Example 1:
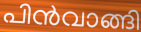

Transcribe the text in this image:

പിൻവാങ്ങി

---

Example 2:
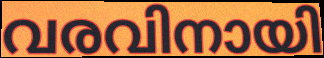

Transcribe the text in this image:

വരവിനായി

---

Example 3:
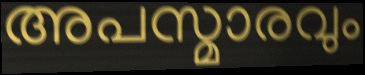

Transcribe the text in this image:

അപസ്മാരവും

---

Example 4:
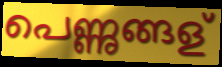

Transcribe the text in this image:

പെണ്ണുങ്ങള്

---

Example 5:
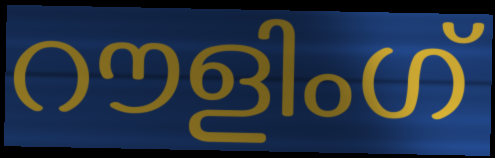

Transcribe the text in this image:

റൗളിംഗ്